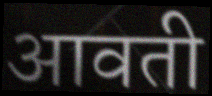
आवती